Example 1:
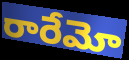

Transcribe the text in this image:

రారేమో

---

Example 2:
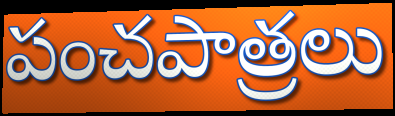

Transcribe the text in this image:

పంచపాత్రలు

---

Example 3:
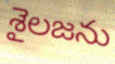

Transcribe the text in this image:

శైలజను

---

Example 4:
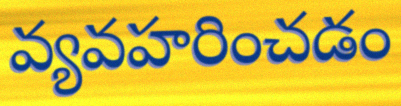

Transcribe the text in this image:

వ్యవహరించడం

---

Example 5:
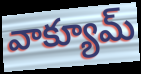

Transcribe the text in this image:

వాక్యూమ్